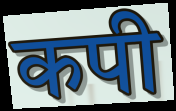
कपी